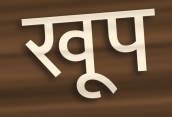
खूप